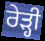
ਰੇੜ੍ਹੀ